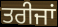
ਤਰੀਜਾਂ